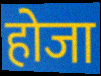
होजा